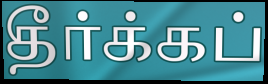
தீர்க்கப்